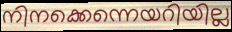
നിനക്കെന്നെയറിയില്ല